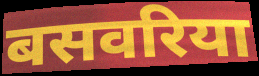
बसवरिया